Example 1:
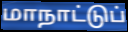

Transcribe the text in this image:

மாநாட்டுப்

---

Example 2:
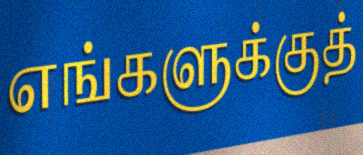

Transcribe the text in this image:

எங்களுக்குத்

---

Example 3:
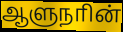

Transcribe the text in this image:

ஆளுநரின்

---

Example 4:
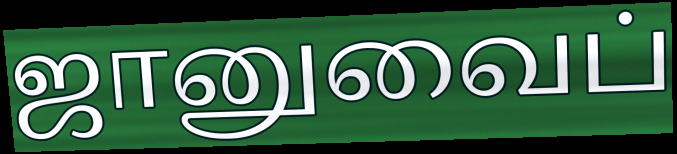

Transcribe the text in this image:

ஜானுவைப்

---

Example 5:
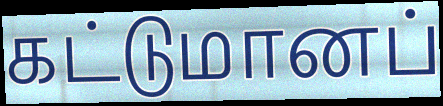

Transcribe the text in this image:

கட்டுமானப்